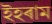
ইহৰাম